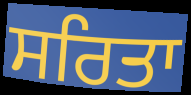
ਸਰਿਤਾ